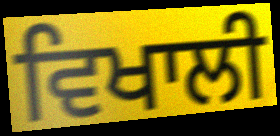
ਵਿਖਾਲੀ